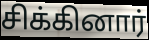
சிக்கினார்